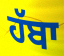
ਹੱਬਾ